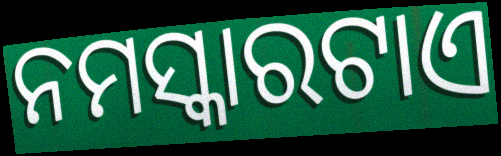
ନମସ୍କାରଟାଏ